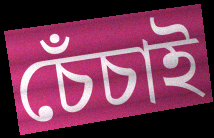
চেঁচাই